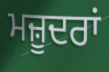
ਮਜ਼ੂਦਰਾਂ